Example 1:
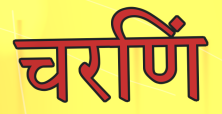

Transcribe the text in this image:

चरणिं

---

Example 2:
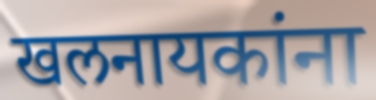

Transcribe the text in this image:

खलनायकांना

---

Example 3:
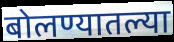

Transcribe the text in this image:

बोलण्यातल्या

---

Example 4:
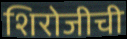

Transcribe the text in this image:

शिरोजीची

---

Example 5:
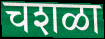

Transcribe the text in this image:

चशळा